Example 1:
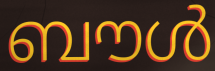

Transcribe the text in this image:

ബൗൾ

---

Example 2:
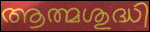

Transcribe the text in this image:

ആത്മശുദ്ധി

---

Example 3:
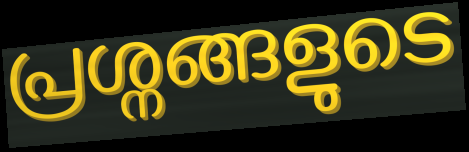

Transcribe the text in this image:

പ്രശ്നങ്ങളുടെ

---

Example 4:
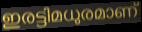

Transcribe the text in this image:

ഇരട്ടിമധുരമാണ്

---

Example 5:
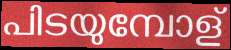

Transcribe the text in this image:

പിടയുമ്പോള്